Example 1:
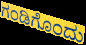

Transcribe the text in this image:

ಗಂಡಿಗೊಂದು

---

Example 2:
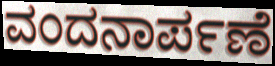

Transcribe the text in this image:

ವಂದನಾರ್ಪಣೆ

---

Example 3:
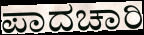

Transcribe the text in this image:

ಪಾದಚಾರಿ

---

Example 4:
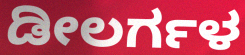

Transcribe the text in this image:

ಡೀಲರ್ಗಳ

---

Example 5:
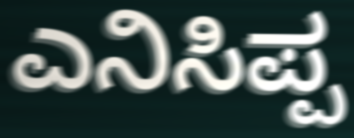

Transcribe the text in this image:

ಎನಿಸಿಪ್ಪ